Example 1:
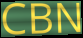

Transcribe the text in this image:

CBN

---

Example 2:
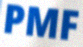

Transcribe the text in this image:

PMF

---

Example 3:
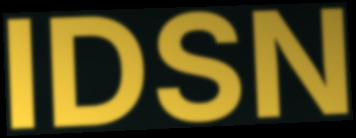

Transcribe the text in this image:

IDSN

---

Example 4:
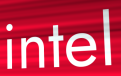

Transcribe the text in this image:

intel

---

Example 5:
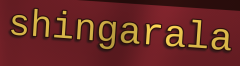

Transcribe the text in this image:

shingarala